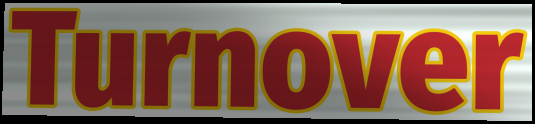
Turnover